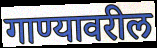
गाण्यावरील